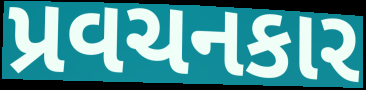
પ્રવચનકાર